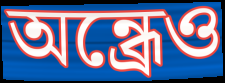
অন্ধ্রেও